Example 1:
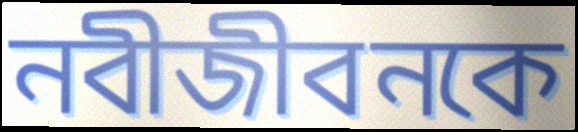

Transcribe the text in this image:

নবীজীবনকে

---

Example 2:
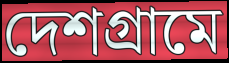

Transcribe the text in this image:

দেশগ্রামে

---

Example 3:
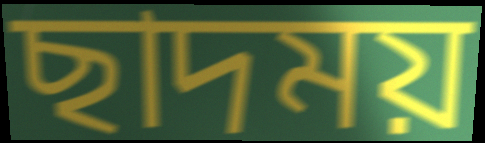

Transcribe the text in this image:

ছাদময়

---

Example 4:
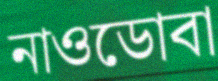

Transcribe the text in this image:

নাওডোবা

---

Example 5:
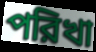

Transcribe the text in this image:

পরিখা